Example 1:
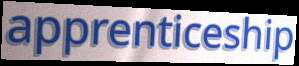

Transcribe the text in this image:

apprenticeship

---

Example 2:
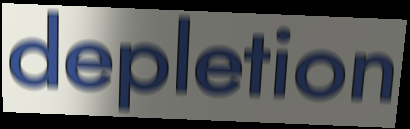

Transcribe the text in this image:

depletion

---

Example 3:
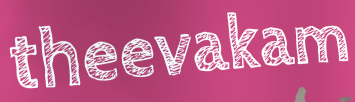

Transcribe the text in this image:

theevakam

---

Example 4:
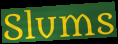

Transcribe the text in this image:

Slums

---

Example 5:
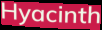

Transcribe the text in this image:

Hyacinth